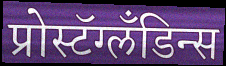
प्रोस्टॅग्लॅंडिन्स